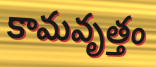
కామవృత్తం